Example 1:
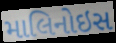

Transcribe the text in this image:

માલિનોઇસ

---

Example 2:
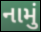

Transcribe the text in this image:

નામું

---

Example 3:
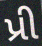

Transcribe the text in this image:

પ્રી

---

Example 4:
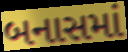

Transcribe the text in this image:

બનાસમાં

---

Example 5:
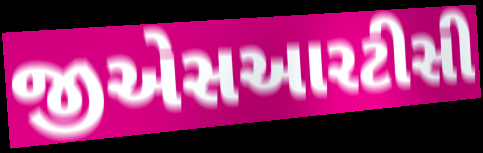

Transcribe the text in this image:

જીએસઆરટીસી